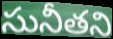
సునీతని